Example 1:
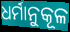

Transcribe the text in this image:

ଧର୍ମାନୁକୂଳ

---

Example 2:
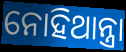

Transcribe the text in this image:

ନୋହିଥାନ୍ତ୍ରା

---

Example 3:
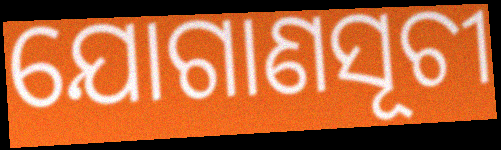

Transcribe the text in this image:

ଯୋଗାଣସୂଚୀ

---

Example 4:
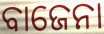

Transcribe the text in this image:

ବାଜେନା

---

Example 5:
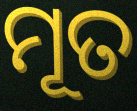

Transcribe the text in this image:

ମୂତ